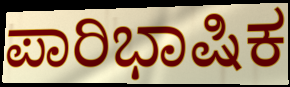
ಪಾರಿಭಾಷಿಕ